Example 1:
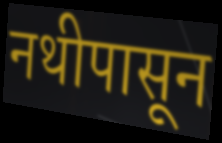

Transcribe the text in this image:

नथीपासून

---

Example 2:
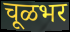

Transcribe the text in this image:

चूळभर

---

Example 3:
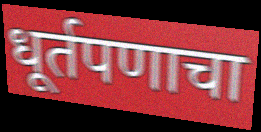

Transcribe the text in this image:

धूर्तपणाचा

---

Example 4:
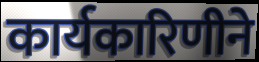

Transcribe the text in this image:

कार्यकारिणीने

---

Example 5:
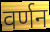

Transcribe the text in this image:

वर्णन